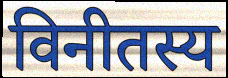
विनीतस्य